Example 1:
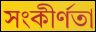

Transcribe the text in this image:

সংকীৰ্ণতা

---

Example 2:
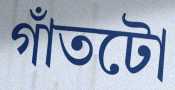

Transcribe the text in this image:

গাঁতটো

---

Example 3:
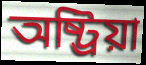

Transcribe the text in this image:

অষ্ট্ৰিয়া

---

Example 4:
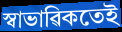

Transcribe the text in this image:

স্বাভাৱিকতেই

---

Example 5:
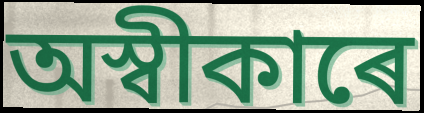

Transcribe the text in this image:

অস্বীকাৰে